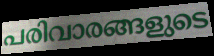
പരിവാരങ്ങളുടെ